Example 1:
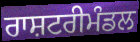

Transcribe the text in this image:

ਰਾਸ਼ਟਰੀਮੰਡਲ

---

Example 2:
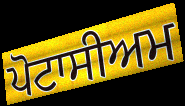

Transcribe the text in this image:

ਪੋਟਾਸੀਅਮ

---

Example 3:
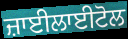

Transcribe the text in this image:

ਜ਼ਾਈਲਾਈਟੋਲ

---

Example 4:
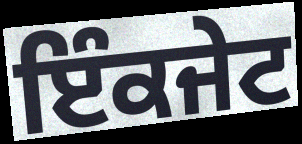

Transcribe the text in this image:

ਇੰਕਜੇਟ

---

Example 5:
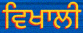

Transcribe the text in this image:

ਵਿਖਾਲੀ